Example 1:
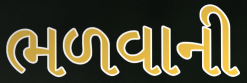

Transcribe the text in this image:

ભળવાની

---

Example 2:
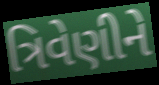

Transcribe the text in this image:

ત્રિવેણીને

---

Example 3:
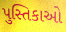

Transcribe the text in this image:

પુસ્તિકાઓ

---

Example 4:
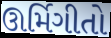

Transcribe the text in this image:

ઊર્મિગીતો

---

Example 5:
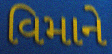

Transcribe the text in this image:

વિમાને